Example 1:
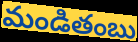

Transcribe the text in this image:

మండితంబు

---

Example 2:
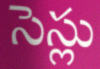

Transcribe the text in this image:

సెస్లు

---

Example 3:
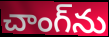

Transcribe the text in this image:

చాంగ్‌ను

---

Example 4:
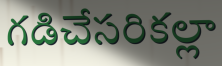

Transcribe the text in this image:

గడిచేసరికల్లా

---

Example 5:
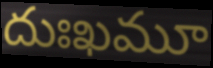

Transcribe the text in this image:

దుఃఖమూ